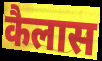
कैलास